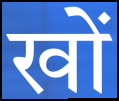
खों